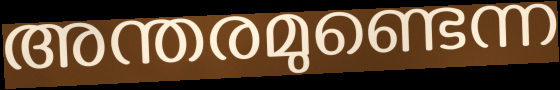
അന്തരമുണ്ടെന്ന